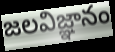
జలవిజ్ఞానం